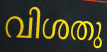
വിശതു